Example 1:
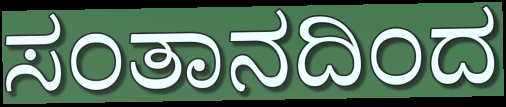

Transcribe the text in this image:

ಸಂತಾನದಿಂದ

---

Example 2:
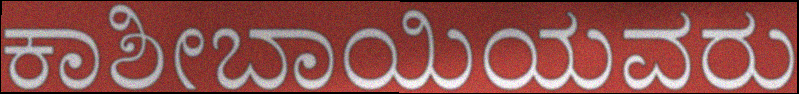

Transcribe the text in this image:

ಕಾಶೀಬಾಯಿಯವರು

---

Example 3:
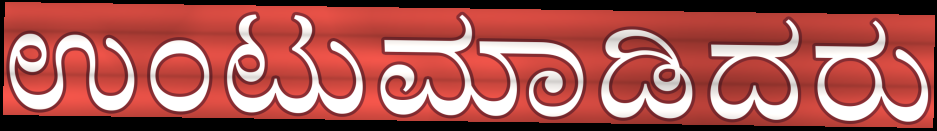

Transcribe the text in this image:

ಉಂಟುಮಾಡಿದರು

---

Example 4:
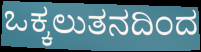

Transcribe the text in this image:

ಒಕ್ಕಲುತನದಿಂದ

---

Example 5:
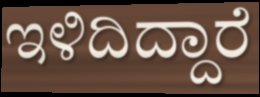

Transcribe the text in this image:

ಇಳಿದಿದ್ದಾರೆ